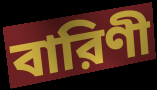
বারিণী